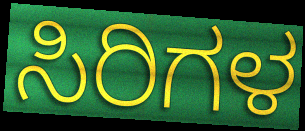
ಸಿರಿಗಳ